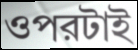
ওপরটাই